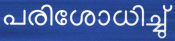
പരിശോധിച്ചു്